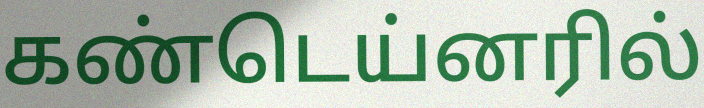
கண்டெய்னரில்